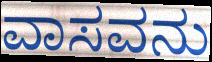
ವಾಸವನು